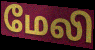
மேலி